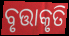
ବୃତ୍ତାକୃତି